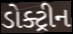
ડોક્ટ્રીન